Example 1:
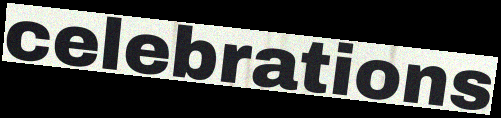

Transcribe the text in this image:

celebrations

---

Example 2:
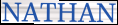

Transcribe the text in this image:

NATHAN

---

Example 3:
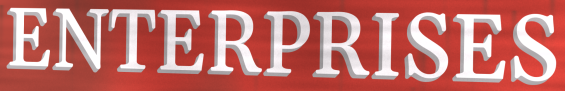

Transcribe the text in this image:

ENTERPRISES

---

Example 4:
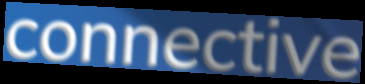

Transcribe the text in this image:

connective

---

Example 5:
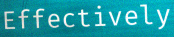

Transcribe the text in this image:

Effectively